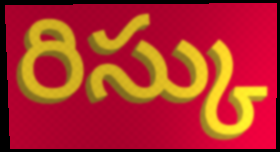
రిస్కు